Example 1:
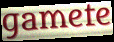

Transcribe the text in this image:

gamete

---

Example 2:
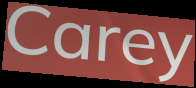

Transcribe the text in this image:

Carey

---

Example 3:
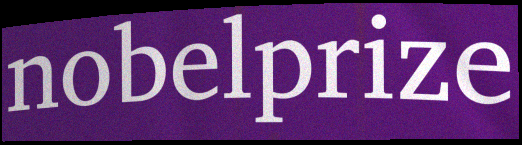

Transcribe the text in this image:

nobelprize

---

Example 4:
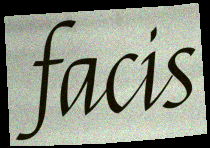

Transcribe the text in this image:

facis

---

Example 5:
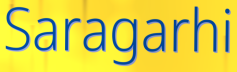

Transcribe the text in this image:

Saragarhi